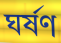
ঘর্ষণ